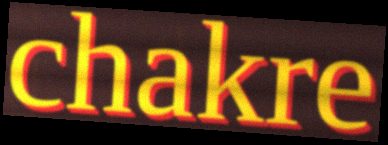
chakre